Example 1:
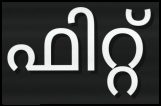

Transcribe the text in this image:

ഫിറ്റ്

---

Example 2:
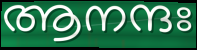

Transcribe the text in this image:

ആനന്ദഃ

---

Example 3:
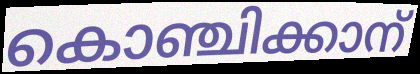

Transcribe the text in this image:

കൊഞ്ചിക്കാന്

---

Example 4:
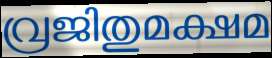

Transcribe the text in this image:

വ്രജിതുമക്ഷമ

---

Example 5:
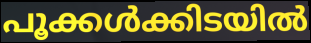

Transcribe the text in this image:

പൂക്കൾക്കിടയിൽ